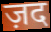
ज़द